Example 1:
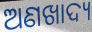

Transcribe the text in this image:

ଅଣଖାଦ୍ୟ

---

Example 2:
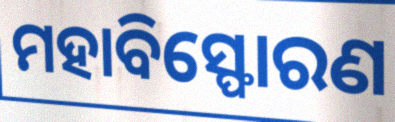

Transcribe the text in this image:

ମହାବିସ୍ଫୋରଣ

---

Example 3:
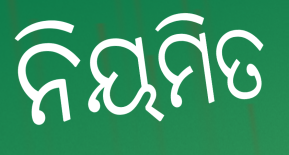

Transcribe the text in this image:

ନିୟମିତ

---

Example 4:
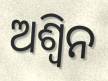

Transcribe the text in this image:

ଅଶ୍ଵିନ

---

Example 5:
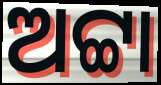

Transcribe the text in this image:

ଅଟ୍ଟା